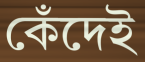
কেঁদেই